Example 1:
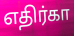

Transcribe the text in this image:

எதிர்கா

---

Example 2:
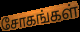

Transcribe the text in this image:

சோகங்கள்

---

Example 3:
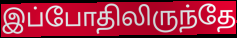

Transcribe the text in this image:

இப்போதிலிருந்தே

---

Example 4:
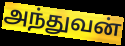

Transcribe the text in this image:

அந்துவன்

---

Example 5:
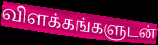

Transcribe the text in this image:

விளக்கங்களுடன்